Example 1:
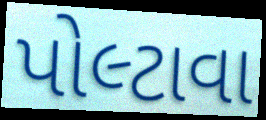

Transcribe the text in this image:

પોલ્ટાવા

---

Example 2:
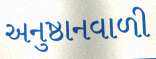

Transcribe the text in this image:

અનુષ્ઠાનવાળી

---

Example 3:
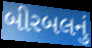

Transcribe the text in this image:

બીરબલનું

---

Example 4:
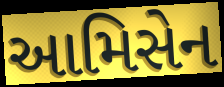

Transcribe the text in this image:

આમિસેન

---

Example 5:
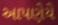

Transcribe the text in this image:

આપણેયે